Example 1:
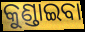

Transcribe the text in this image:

କୁଣ୍ଡାଇବା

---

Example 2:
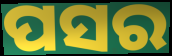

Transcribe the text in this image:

ପସର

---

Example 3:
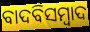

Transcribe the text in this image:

ବାଦବିସମ୍ବାଦ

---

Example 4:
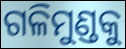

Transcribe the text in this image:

ଗଳିମୁଣ୍ଡକୁ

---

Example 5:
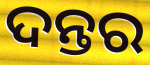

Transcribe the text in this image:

ଦନ୍ତର